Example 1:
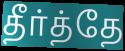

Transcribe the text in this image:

தீர்த்தே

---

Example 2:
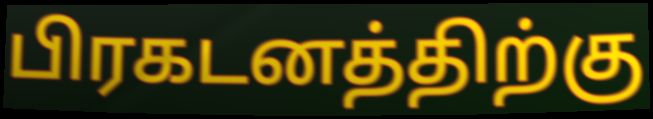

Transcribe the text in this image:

பிரகடனத்திற்கு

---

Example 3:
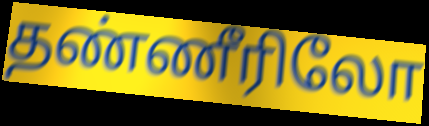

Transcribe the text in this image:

தண்ணீரிலோ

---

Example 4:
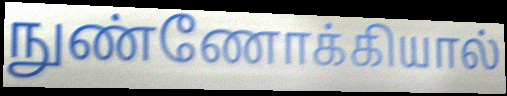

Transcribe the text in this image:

நுண்ணோக்கியால்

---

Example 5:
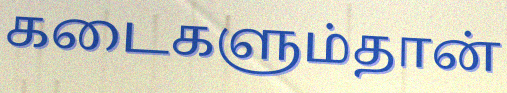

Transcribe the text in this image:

கடைகளும்தான்